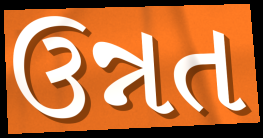
ઉન્નત